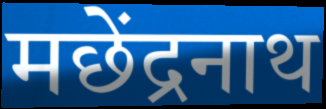
मछेंद्रनाथ